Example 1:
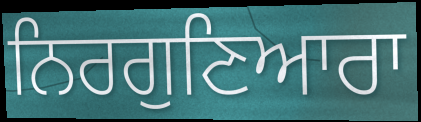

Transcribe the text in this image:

ਨਿਰਗੁਣਿਆਰਾ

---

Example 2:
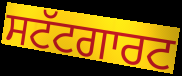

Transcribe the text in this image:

ਸਟੱਟਗਾਰਟ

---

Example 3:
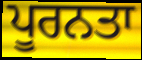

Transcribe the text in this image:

ਪੂਰਨਤਾ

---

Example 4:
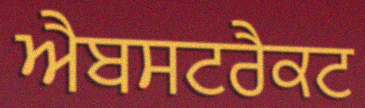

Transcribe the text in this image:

ਐਬਸਟਰੈਕਟ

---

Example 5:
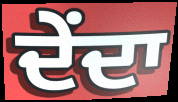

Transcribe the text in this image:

ਦੇਂਦਾ